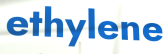
ethylene